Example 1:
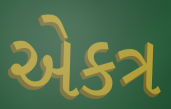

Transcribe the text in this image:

એકત્ર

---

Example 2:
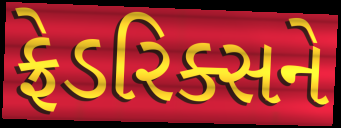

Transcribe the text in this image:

ફ્રેડરિક્સને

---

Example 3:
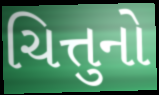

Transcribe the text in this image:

ચિત્તુનો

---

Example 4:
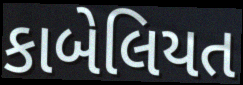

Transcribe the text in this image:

કાબેલિયત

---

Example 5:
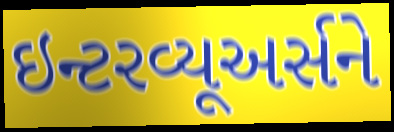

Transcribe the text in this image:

ઇન્ટરવ્યૂઅર્સને